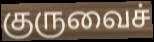
குருவைச்